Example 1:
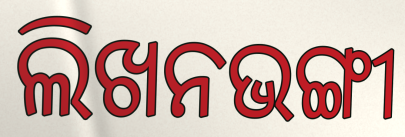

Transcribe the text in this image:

ଲିଖନଭଙ୍ଗୀ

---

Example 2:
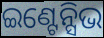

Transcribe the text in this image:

ଇଣ୍ଟେନ୍ସିଭ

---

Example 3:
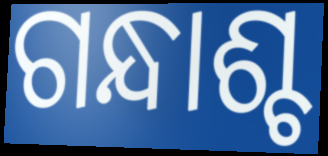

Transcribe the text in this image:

ଗନ୍ଧାଶ୍ଚ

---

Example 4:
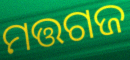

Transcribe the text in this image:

ମତ୍ତଗଜ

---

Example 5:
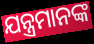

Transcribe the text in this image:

ଯନ୍ତ୍ରମାନଙ୍କ